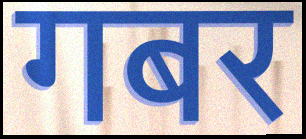
गबर